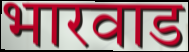
भारवाड